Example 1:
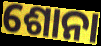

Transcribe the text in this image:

ଶୋନା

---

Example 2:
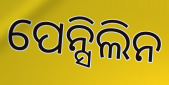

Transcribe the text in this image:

ପେନ୍ସିଲିନ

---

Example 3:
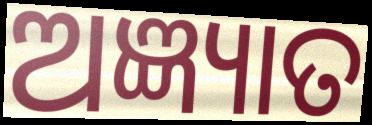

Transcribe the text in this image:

ଅଜ୍ଞ୍ୟାତ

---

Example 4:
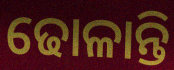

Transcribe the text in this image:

ଢୋଳାନ୍ତି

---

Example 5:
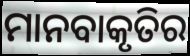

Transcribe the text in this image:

ମାନବାକୃତିର